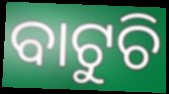
ବାଟୁଚି